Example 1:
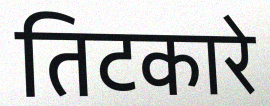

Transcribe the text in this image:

तिटकारे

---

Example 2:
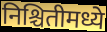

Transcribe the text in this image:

निश्चितीमध्ये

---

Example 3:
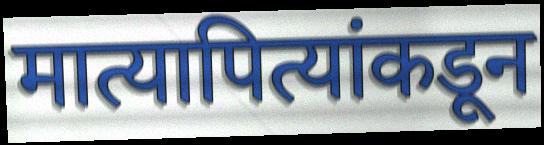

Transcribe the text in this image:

मात्यापित्यांकडून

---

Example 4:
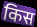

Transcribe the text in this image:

किस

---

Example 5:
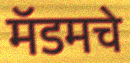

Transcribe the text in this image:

मॅडमचे